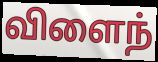
விளைந்